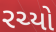
રચ્યો